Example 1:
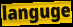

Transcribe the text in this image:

languge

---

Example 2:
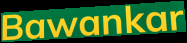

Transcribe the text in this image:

Bawankar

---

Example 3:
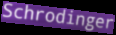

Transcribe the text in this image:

Schrodinger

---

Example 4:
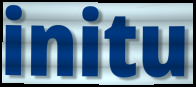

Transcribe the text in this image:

initu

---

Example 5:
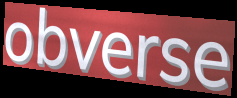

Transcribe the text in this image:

obverse